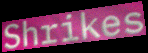
Shrikes